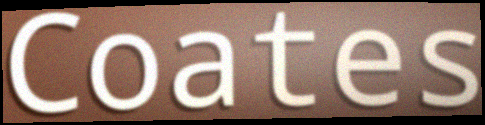
Coates